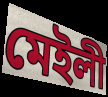
মেইলী